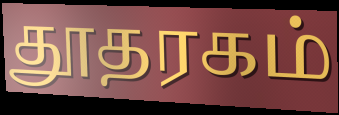
தூதரகம்